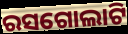
ରସଗୋଲାଟି